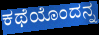
ಕಥೆಯೊಂದನ್ನ